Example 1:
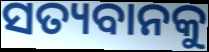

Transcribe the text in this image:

ସତ୍ୟବାନକୁ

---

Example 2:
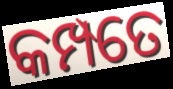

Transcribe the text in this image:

କମ୍ପତେ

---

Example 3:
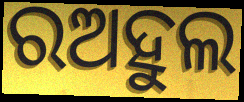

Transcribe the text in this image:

ରଅହୁଲ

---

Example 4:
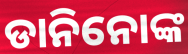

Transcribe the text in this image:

ଡାନିନୋଙ୍କ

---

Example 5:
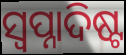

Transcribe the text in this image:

ସ୍ୱପ୍ନାଦିଷ୍ଟ